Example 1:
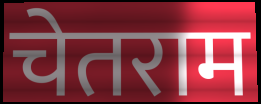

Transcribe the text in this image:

चेतराम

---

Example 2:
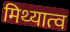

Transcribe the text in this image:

मिथ्‍यात्‍व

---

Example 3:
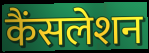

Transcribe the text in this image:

कैंसलेशन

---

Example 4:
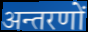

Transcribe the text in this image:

अन्तरणों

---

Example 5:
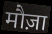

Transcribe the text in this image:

मौज़ा